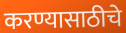
करण्यासाठीचे